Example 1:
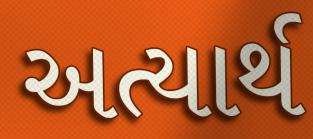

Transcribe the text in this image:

અત્યાર્થ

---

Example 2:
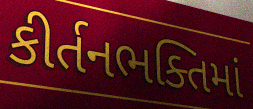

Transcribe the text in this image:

કીર્તનભક્તિમાં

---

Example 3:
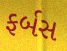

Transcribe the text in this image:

ફર્બસ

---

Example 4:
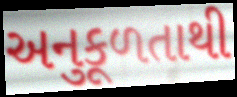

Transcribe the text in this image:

અનુકૂળતાથી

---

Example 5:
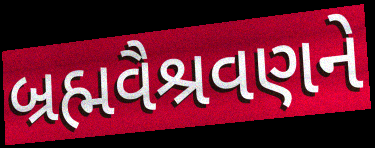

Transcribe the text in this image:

બ્રહ્મવૈશ્રવણને